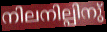
നിലനില്പിനു്